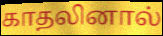
காதலினால்